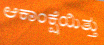
ಆಕಾಂಕ್ಷೆಯಿತ್ತು